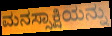
ಮನಸ್ಸಾಕ್ಷಿಯನ್ನು